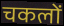
चकलों